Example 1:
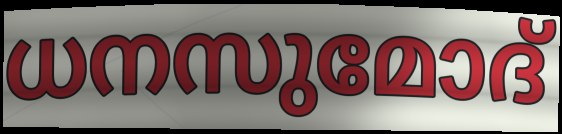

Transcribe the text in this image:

ധനസുമോദ്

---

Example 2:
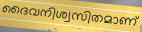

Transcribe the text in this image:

ദൈവനിശ്വസിതമാണ്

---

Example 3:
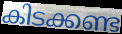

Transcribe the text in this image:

കിടക്കണ്ട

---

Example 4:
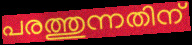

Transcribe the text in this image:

പരത്തുന്നതിന്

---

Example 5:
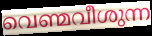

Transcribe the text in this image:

വെണ്മവീശുന്ന